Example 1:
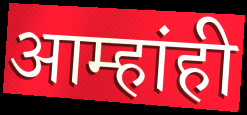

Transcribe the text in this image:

आम्हांही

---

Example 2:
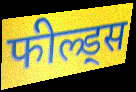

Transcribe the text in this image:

फील्ड्स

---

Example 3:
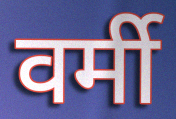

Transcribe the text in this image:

वर्मी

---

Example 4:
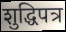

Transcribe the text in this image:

शुद्धिपत्र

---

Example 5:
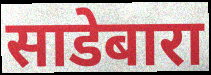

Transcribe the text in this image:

साडेबारा